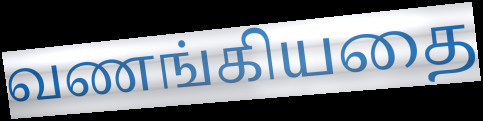
வணங்கியதை